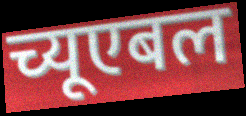
च्यूएबल